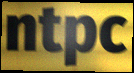
ntpc